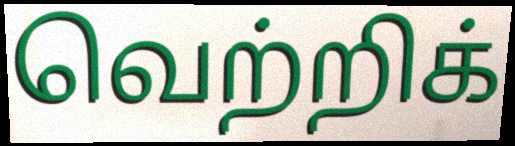
வெற்றிக்